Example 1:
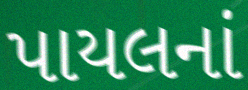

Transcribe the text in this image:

પાયલનાં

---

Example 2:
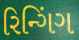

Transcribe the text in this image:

રિન્ગિંગ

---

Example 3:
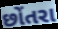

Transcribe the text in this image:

છોંતરા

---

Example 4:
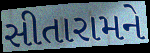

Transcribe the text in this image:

સીતારામને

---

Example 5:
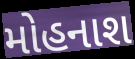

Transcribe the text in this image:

મોહનાશ